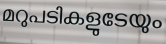
മറുപടികളുടേയും